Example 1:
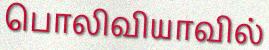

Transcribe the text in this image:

பொலிவியாவில்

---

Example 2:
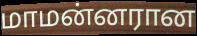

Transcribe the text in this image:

மாமன்னரான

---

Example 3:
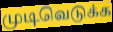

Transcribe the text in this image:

முடிவெடுக்க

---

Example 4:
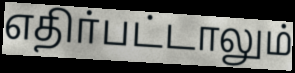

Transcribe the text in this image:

எதிர்பட்டாலும்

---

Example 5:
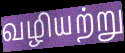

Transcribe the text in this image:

வழியற்று